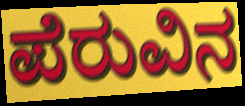
ಪೆರುವಿನ